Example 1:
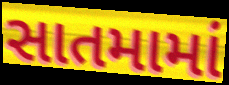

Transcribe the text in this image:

સાતમામાં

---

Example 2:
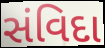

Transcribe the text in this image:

સંવિદા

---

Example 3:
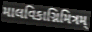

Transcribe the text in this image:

માલવિકાગ્નિમિત્રમ્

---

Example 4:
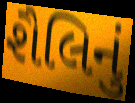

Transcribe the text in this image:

શૈલિનું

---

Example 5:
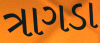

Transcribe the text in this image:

ત્રાગડા